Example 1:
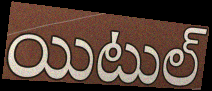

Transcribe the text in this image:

యిటుల్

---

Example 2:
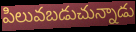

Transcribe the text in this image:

పిలువబడుచున్నాడు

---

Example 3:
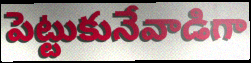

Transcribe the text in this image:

పెట్టుకునేవాడిగా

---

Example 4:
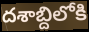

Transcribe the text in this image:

దశాబ్దిలోకి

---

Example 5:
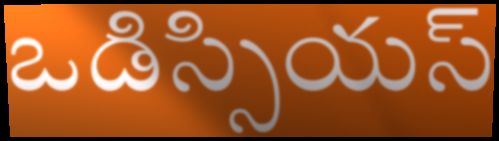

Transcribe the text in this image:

ఒడిస్సియస్